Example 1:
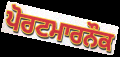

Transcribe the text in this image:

ਪੋਰਟਮਾਰਨੌਕ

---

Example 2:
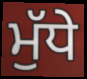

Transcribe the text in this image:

ਮੁੱਧੇ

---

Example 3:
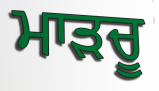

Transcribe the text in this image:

ਮਾੜਚੂ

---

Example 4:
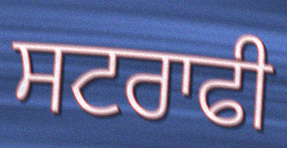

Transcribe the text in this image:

ਸਟਰਾਫੀ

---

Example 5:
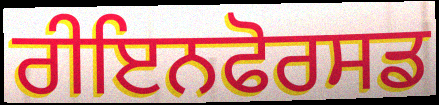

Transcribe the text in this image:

ਰੀਇਨਫੋਰਸਡ